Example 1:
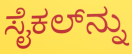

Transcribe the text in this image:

ಸೈಕಲ್‌ನ್ನು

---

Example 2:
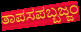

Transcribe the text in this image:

ತಾಪಸಪಬ್ಬಜ್ಜಂ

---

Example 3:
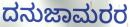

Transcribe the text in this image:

ದನುಜಾಮರರ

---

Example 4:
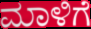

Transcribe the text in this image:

ಮಾಳಿಗೆ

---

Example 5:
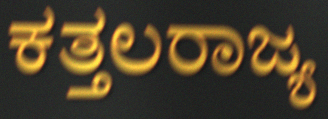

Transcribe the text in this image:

ಕತ್ತಲರಾಜ್ಯ